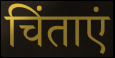
चिंताएं